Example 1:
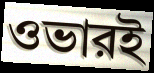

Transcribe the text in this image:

ওভারই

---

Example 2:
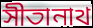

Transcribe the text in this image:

সীতানাথ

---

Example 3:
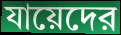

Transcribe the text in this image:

যায়েদের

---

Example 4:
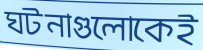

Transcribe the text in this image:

ঘটনাগুলোকেই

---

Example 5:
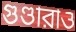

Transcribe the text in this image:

গুণ্ডারাও